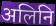
अलिनि